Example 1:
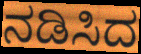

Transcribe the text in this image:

ನಡಿಸಿದ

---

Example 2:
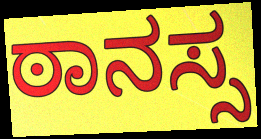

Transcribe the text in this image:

ಠಾನಸ್ಸ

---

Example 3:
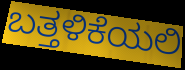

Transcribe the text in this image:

ಬತ್ತಳಿಕೆಯಲಿ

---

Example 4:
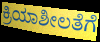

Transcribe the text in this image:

ಕ್ರಿಯಾಶೀಲತೆಗೆ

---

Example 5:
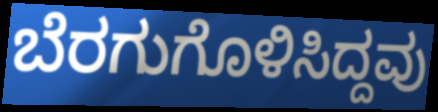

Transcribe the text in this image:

ಬೆರಗುಗೊಳಿಸಿದ್ದವು